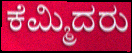
ಕೆಮ್ಮಿದರು